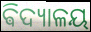
ଵିଦ୍ୟାଳୟ